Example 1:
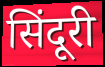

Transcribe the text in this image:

सिंदूरी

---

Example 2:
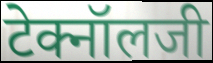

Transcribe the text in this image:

टेक्नॉलजी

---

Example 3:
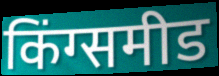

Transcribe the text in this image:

किंग्समीड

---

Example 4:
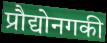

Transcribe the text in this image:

प्रौद्योनगकी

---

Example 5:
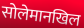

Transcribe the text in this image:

सोलेमानखिल